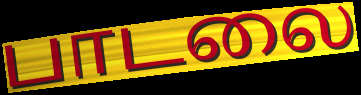
பாடலை